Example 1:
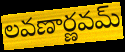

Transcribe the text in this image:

లవణార్ణవమ్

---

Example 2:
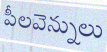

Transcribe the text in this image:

పీలవెన్నులు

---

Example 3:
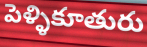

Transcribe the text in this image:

పెళ్ళికూతురు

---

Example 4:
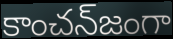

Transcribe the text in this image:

కాంచన్‌జంగా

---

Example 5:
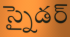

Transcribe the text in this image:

స్నైడర్